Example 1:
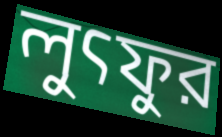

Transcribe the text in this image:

লুৎফুর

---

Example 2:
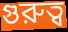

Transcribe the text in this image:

গুরুত্ব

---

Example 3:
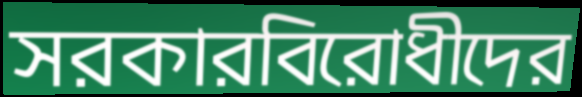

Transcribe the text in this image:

সরকারবিরোধীদের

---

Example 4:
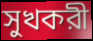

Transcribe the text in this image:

সুখকরী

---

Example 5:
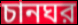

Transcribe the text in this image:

চানঘর